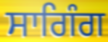
ਸਾਗਿੰਗ